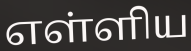
எள்ளிய